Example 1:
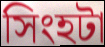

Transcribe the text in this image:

সিংহটা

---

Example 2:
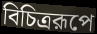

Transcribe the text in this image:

বিচিত্ররূপে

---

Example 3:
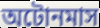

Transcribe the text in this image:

অটোনমাস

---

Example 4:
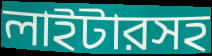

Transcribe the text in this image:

লাইটারসহ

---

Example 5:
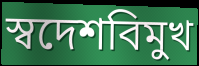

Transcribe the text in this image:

স্বদেশবিমুখ